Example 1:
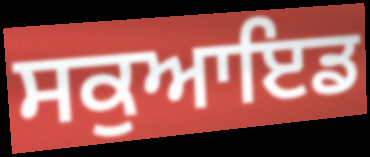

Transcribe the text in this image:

ਸਕੁਆਇਡ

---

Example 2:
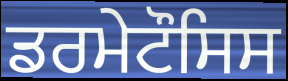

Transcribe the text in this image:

ਡਰਮੇਟੌਸਿਸ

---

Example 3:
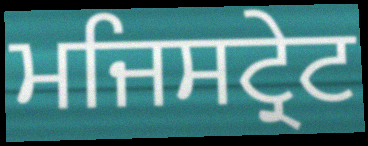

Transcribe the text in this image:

ਮਜਿਸਟ੍ਰੇਟ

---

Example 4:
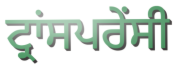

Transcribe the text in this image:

ਟ੍ਰਾਂਸਪਰੇਂਸੀ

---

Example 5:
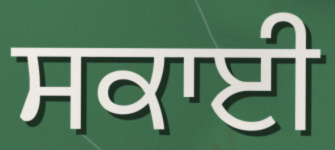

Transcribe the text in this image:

ਸਕਾਈ